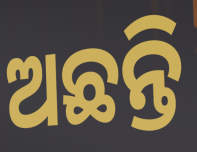
ଅଛନ୍ତି